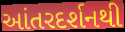
આંતરદર્શનથી